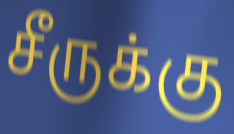
சீருக்கு